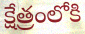
క్షేత్రంలోకి